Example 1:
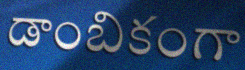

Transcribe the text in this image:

డాంబికంగా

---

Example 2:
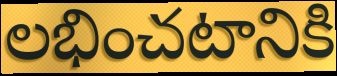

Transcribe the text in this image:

లభించటానికి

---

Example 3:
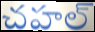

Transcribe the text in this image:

చహల్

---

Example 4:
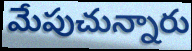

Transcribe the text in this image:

మేపుచున్నారు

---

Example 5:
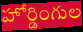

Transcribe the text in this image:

హోర్డింగుల